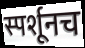
स्पर्शूनच